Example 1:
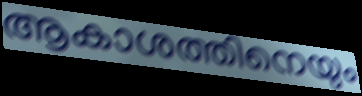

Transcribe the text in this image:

ആകാശത്തിനെയും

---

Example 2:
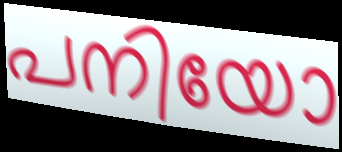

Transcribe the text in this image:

പനിയോ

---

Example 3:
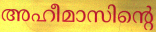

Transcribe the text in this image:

അഹീമാസിന്റെ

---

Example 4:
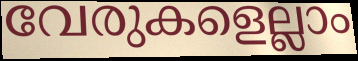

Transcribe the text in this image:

വേരുകളെല്ലാം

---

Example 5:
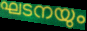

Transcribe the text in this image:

ഘടനയും